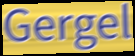
Gergel